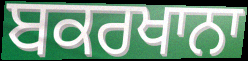
ਬਕਰਖਾਨਾ